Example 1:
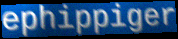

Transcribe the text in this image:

ephippiger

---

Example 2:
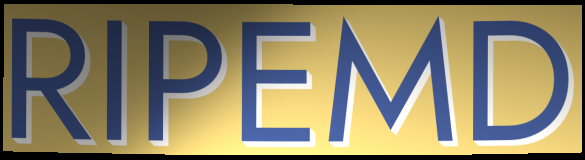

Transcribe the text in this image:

RIPEMD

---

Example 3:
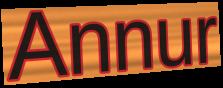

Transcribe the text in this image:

Annur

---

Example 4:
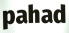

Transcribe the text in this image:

pahad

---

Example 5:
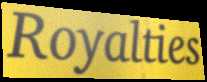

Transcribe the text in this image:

Royalties